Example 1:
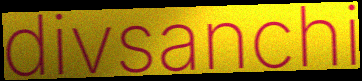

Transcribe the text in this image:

divsanchi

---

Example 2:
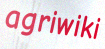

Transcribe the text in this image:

agriwiki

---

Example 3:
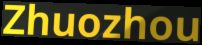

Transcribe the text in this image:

Zhuozhou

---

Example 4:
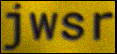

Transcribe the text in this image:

jwsr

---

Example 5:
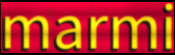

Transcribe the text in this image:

marmi